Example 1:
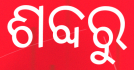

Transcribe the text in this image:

ଶବ୍ଦରୁ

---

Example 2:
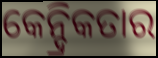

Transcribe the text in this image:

କେନ୍ଦ୍ରିକତାର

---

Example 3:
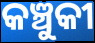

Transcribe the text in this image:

କଞ୍ଚୁକୀ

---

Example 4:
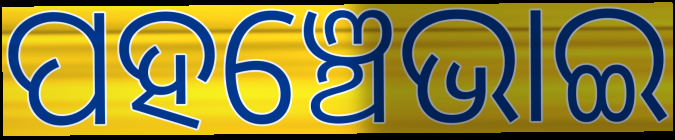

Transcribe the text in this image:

ପହଞ୍ଚେଭାଇ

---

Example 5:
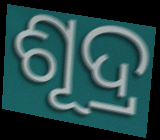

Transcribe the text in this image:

ଶୂଦ୍ର